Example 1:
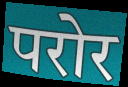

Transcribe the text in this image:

परोर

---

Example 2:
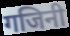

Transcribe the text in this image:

गजिनी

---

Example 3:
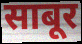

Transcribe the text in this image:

साबूर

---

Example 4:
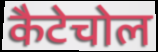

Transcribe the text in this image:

कैटेचोल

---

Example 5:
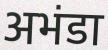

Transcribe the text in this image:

अभंडा